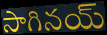
సాగినయ్